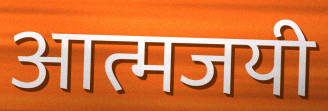
आत्मजयी